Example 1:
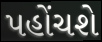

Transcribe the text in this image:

પહોંચશે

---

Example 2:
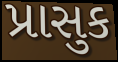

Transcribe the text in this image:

પ્રાસુક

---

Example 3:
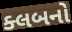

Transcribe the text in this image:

ક્લબનો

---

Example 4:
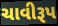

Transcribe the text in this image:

ચાવીરૂપ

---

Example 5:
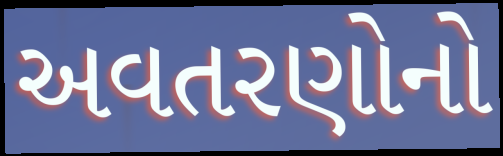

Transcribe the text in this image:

અવતરણોનો